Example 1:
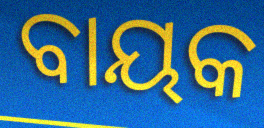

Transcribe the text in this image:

ବାୟକ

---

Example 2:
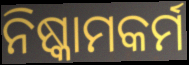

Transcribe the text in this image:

ନିଷ୍କାମକର୍ମ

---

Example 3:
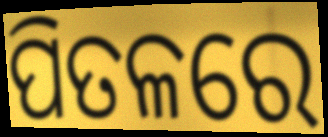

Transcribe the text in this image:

ପିତଳରେ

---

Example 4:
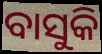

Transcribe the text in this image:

ବାସୁକି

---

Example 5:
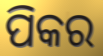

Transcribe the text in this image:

ପିକର